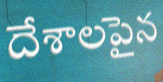
దేశాలపైన